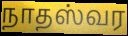
நாதஸ்வர